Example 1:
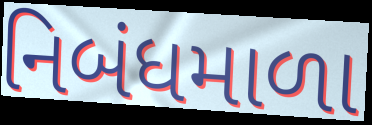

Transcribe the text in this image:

નિબંધમાળા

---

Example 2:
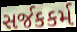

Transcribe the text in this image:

સર્જકકર્મ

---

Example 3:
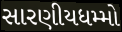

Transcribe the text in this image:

સારણીયધમ્મો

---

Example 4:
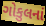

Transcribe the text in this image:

ગોકુલનાં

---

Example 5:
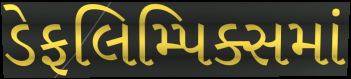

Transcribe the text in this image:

ડેફલિમ્પિક્સમાં